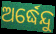
ଅର୍ଦ୍ଧେନ୍ଦୁ